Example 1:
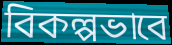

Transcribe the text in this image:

বিকল্পভাবে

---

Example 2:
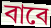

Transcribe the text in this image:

বাবে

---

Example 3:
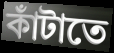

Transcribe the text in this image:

কাঁটাতে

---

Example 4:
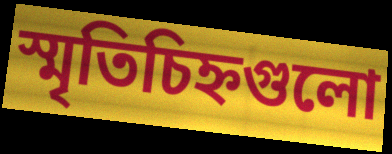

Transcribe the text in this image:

স্মৃতিচিহ্নগুলো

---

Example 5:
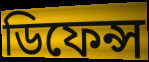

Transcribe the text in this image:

ডিফেন্স